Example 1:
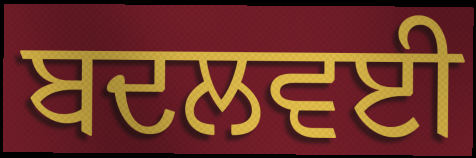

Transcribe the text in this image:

ਬਦਲਵਈ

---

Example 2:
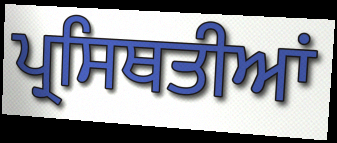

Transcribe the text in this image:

ਪ੍ਰਸਿਥਤੀਆਂ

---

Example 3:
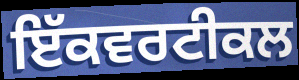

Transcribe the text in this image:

ਇੱਕਵਰਟੀਕਲ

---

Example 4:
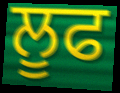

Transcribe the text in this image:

ਲੂਫ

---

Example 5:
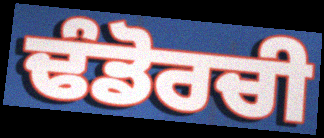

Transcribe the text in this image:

ਢੰਡੋਰਚੀ